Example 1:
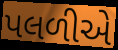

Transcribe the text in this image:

પલળીએ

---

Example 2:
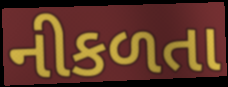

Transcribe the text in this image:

નીકળતા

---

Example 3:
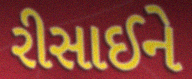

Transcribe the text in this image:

રીસાઈને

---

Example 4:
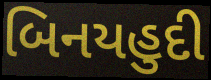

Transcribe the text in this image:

બિનયહુદી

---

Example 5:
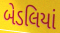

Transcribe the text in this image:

બેડલિયાં